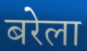
बरेला